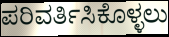
ಪರಿವರ್ತಿಸಿಕೊಳ್ಳಲು